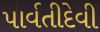
પાર્વતીદેવી